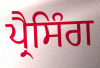
ਪ੍ਰੈਸਿੰਗ